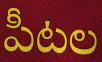
పీటల